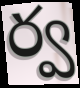
ర్వ